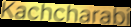
Kachcharabi